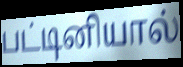
பட்டினியால்